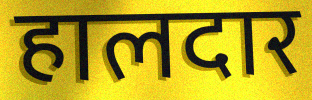
हालदार